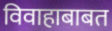
विवाहाबाबत